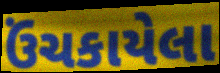
ઉંચકાયેલા